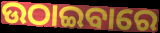
ଉଠାଇବାରେ